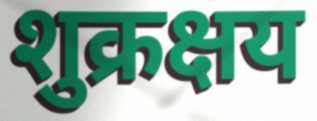
शुक्रक्षय